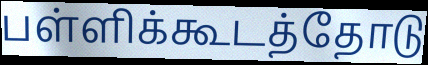
பள்ளிக்கூடத்தோடு